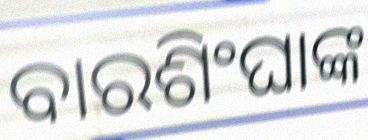
ବାରଶିଂଘାଙ୍କ